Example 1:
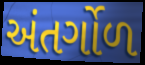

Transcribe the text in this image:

અંતર્ગોળ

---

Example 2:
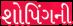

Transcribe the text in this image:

શોપિંગની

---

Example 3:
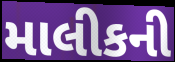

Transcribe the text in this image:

માલીકની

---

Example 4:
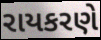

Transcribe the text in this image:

રાયકરણે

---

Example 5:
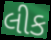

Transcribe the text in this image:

લીક